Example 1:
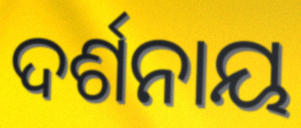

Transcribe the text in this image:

ଦର୍ଶନାୟ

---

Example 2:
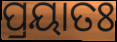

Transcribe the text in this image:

ପ୍ରୟାତଃ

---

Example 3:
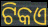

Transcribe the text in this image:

ଟିକଏ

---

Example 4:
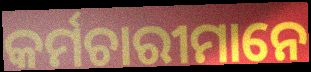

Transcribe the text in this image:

କର୍ମଚାରୀମାନେ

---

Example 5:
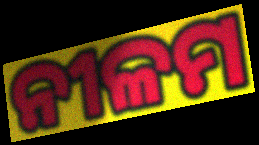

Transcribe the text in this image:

ନୀଳମ